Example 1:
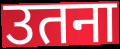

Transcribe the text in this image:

उतना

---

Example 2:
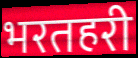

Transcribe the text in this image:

भरतहरी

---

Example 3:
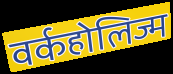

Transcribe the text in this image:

वर्कहोलिज्म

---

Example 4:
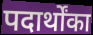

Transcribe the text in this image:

पदार्थोंका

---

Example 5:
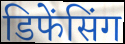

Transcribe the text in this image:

डिफेंसिंग